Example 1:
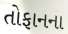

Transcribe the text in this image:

તોફાનના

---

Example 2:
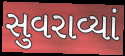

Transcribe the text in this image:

સુવરાવ્યાં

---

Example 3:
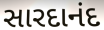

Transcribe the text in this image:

સારદાનંદ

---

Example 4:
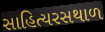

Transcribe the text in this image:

સાહિત્યરસથાળ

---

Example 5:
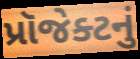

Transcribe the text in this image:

પ્રૉજેક્ટનું